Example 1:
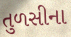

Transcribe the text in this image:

તુળસીના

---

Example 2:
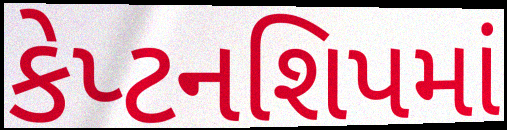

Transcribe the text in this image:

કેપ્ટનશિપમાં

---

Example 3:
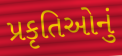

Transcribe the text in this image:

પ્રકૃતિઓનું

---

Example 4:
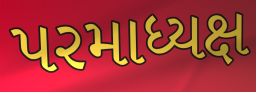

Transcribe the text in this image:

પરમાધ્યક્ષ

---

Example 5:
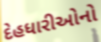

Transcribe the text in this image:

દેહધારીઓનો